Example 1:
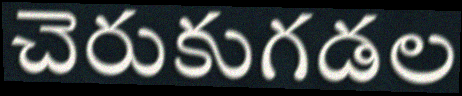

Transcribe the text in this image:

చెరుకుగడల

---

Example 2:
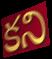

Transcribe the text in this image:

కని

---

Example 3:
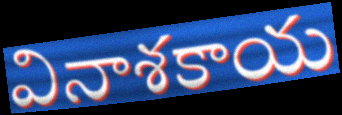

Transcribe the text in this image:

వినాశకాయ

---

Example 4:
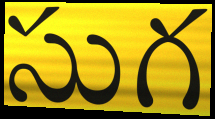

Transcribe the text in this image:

సుగ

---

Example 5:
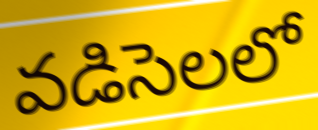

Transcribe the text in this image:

వడిసెలలో